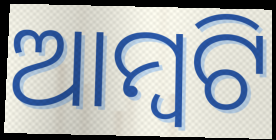
ଆମ୍ୱଟି